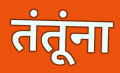
तंतूंना